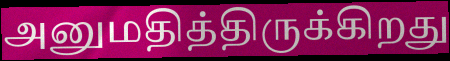
அனுமதித்திருக்கிறது